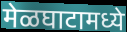
मेळघाटामध्ये